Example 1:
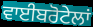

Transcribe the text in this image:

ਵਾਈਬਰੋਟੇਲਾਂ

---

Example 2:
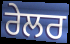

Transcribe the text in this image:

ਰੇਲਰ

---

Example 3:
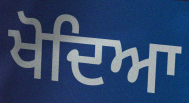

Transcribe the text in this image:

ਖੋਦਿਆ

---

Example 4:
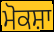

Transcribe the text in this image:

ਮੋਕਸ਼ਾ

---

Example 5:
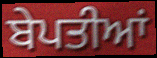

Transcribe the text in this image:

ਬੇਪਤੀਆਂ